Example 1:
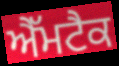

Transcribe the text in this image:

ਐੱਮਟੈਕ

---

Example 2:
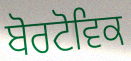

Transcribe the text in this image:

ਬੋਰਟੋਵਿਕ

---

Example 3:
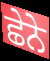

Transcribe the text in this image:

ਛੇਨੇ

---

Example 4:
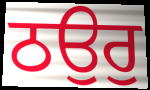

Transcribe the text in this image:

ਠਉਰੁ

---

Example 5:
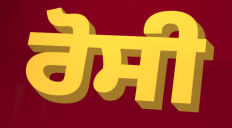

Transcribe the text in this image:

ਰੋਸੀ